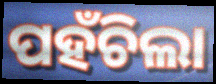
ପହଁଚିଲା